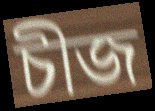
চীজ